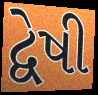
દ્વેષી